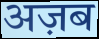
अज़ब